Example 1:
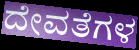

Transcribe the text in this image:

ದೇವತೆಗಳ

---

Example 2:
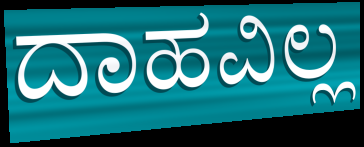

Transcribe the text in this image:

ದಾಹವಿಲ್ಲ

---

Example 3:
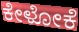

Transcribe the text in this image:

ಕೇಳೋಕೆ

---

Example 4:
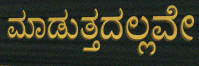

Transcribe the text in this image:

ಮಾಡುತ್ತದಲ್ಲವೇ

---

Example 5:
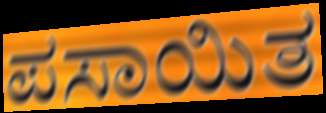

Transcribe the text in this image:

ಪಸಾಯಿತ